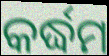
କର୍ଦ୍ଧମ